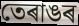
তেৰাঙৰ